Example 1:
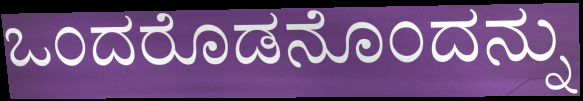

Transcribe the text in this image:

ಒಂದರೊಡನೊಂದನ್ನು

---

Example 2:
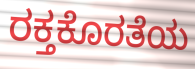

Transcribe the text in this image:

ರಕ್ತಕೊರತೆಯ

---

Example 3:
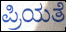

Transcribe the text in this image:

ಪ್ರಿಯತೆ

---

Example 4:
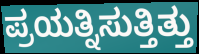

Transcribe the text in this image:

ಪ್ರಯತ್ನಿಸುತ್ತಿತ್ತು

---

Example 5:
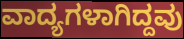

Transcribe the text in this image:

ವಾದ್ಯಗಳಾಗಿದ್ದವು